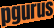
pgurus